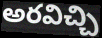
అరవిచ్చి